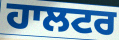
ਹਾਲਟਰ